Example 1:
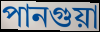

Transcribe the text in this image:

পানগুয়া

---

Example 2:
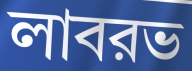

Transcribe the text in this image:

লাবরভ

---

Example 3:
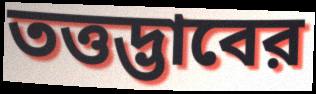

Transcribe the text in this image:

তত্তদ্ভাবের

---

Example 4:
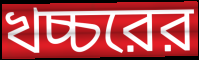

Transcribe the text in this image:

খচ্চরের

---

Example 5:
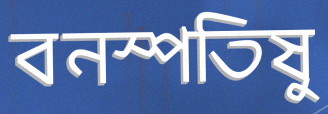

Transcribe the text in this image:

বনস্পতিষু